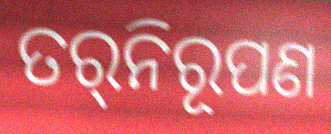
ତର୍‌ନିରୂପଣ